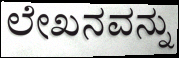
ಲೇಖನವನ್ನು